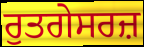
ਰੁਤਗੇਸਰਜ਼